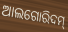
ଆଲଗୋରିଦମ୍